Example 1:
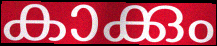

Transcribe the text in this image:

കാക്കും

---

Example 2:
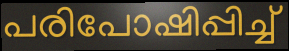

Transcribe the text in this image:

പരിപോഷിപ്പിച്ച്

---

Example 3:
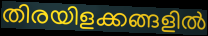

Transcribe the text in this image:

തിരയിളക്കങ്ങളിൽ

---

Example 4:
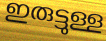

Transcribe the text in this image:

ഇരുട്ടുള്ള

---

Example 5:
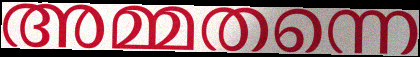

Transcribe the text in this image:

അമ്മതന്നെ